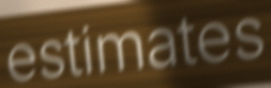
estimates